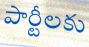
పార్టీలకు